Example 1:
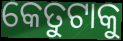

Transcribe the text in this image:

କେତୁଟାକୁ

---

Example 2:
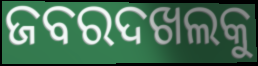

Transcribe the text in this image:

ଜବରଦଖଲକୁ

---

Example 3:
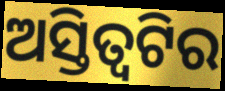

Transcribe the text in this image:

ଅସ୍ତିତ୍ୱଟିର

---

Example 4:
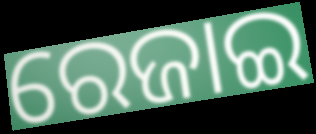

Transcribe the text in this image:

ରେଜାଇ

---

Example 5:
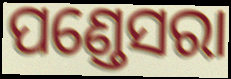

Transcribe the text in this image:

ପଣ୍ଡେସରା